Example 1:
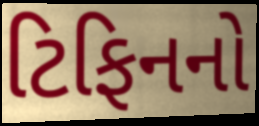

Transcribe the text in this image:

ટિફિનનો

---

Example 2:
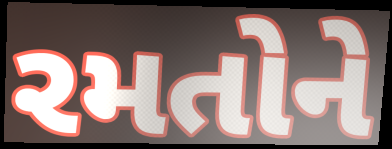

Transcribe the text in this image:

રમતોને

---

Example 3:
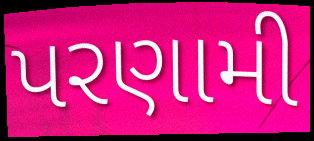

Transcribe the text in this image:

પરણામી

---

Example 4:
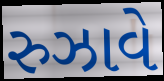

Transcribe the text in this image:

રુઝાવે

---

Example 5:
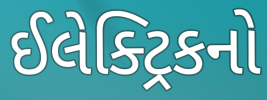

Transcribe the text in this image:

ઈલેક્ટ્રિકનો